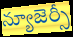
న్యూజెర్సీ